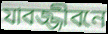
যাবজ্জীবনে